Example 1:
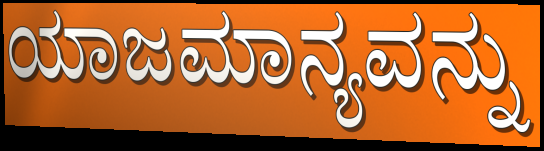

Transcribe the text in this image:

ಯಾಜಮಾನ್ಯವನ್ನು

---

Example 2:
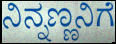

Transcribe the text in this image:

ನಿನ್ನಣ್ಣನಿಗೆ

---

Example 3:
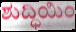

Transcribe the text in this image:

ಶುದ್ಧಿಯಿಂ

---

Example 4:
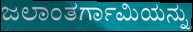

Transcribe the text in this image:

ಜಲಾಂತರ್ಗಾಮಿಯನ್ನು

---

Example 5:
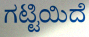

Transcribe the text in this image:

ಗಟ್ಟಿಯಿದೆ